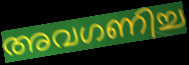
അവഗണിച്ച